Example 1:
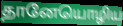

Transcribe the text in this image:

தானேயொழிய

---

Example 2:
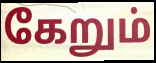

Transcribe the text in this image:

கேறும்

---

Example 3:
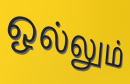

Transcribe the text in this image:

ஒல்லும்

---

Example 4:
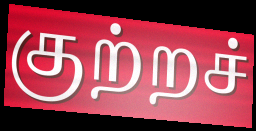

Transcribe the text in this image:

குற்றச்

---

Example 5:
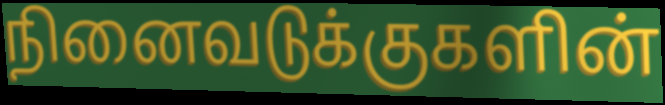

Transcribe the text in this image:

நினைவடுக்குகளின்